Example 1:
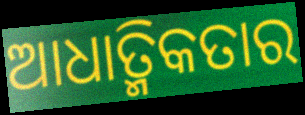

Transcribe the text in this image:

ଆଧାତ୍ମିକତାର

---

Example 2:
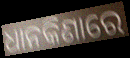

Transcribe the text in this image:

ଧାନକିଣାରେ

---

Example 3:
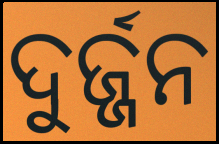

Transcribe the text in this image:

ଦୁର୍ଜ୍ଜନ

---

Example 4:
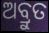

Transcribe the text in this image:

ଅବ୍ରୁତ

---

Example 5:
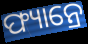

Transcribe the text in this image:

ଫ୍ୟାନ୍ରେ